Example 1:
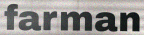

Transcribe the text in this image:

farman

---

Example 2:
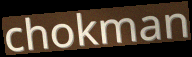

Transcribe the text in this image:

chokman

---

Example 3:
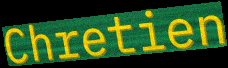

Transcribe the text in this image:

Chretien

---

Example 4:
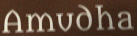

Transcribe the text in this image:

Amudha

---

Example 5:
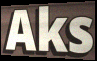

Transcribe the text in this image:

Aks